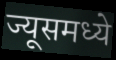
ज्यूसमध्ये